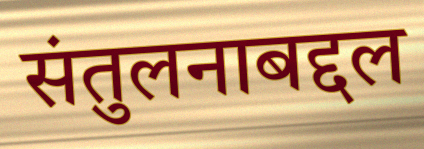
संतुलनाबद्दल